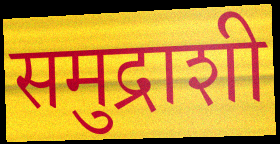
समुद्राशी